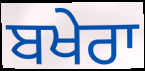
ਬਖੇਰਾ